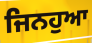
ਜਿਨਹੁਆ